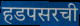
हडपसरची